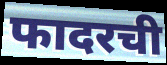
फादरची